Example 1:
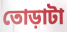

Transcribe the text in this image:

তোড়াটা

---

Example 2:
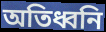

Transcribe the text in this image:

অতিধ্বনি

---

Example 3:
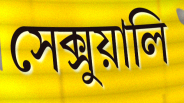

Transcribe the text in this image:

সেক্সুয়ালি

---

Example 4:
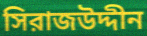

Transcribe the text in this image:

সিরাজউদ্দীন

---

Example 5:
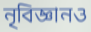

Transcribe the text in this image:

নৃবিজ্ঞানও